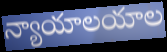
న్యాయాలయాల